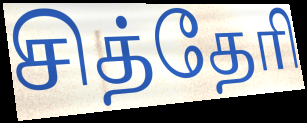
சித்தேரி